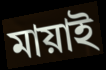
মায়াই